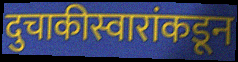
दुचाकीस्वारांकडून